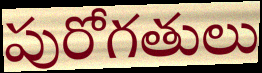
పురోగతులు